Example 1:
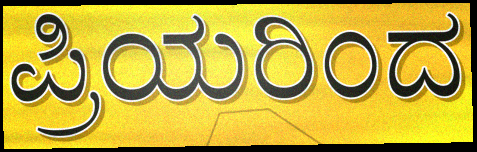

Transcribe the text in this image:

ಪ್ರಿಯರಿಂದ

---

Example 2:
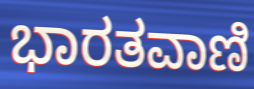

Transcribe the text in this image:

ಭಾರತವಾಣಿ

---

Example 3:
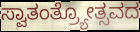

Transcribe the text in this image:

ಸ್ವಾತಂತ್ರ್ಯೋತ್ಸವದ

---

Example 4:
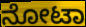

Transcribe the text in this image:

ನೋಟಾ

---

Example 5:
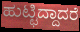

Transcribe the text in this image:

ಹುಟ್ಟಿದ್ದಾದರೆ